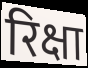
रिक्षा